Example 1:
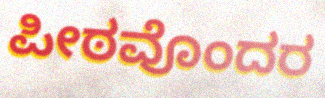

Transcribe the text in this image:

ಪೀಠವೊಂದರ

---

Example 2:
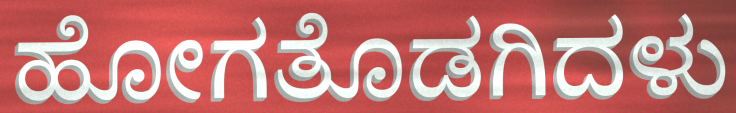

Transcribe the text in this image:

ಹೋಗತೊಡಗಿದಳು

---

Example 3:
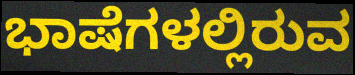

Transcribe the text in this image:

ಭಾಷೆಗಳಲ್ಲಿರುವ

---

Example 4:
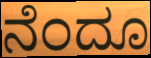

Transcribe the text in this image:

ನೆಂದೂ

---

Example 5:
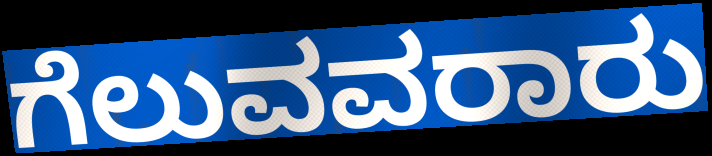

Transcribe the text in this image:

ಗೆಲುವವರಾರು